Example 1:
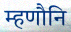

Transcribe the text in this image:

म्हणौनि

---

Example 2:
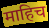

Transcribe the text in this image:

माहिच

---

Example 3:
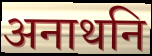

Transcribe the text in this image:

अनाथनि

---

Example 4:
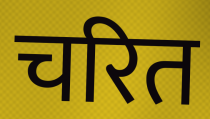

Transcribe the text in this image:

चरित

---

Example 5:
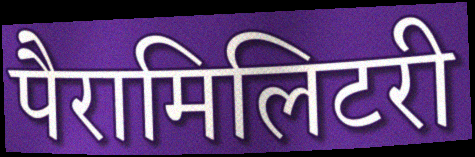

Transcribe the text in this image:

पैरामिलिटरी